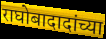
राघोबादादांच्या